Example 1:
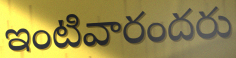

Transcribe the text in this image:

ఇంటివారందరు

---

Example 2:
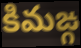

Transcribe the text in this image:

కిమఙ్గ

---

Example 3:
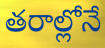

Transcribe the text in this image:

తరాల్లోనే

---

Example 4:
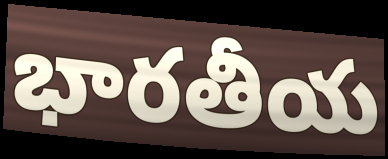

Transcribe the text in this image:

భారతీయ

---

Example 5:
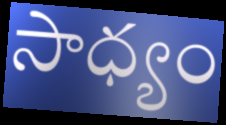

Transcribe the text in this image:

సాధ్యం